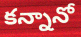
కన్నానో